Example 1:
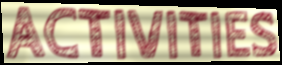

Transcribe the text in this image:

ACTIVITIES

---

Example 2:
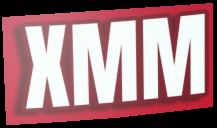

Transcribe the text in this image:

XMM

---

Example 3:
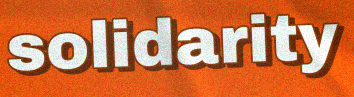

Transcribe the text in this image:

solidarity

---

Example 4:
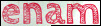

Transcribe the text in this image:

enam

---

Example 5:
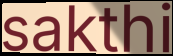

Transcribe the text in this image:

sakthi